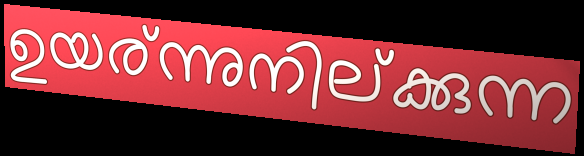
ഉയര്ന്നുനില്ക്കുന്ന